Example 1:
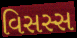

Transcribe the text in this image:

વિસસ્સ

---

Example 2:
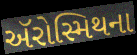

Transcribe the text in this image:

ઍરોસ્મિથના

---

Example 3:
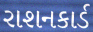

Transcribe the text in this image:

રાશનકાર્ડ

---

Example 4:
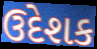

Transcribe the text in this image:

ઉદેશક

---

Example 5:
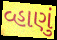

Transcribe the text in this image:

વ્હાણું